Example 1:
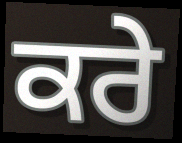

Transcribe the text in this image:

ਕਰੇ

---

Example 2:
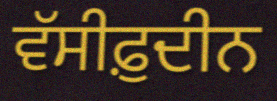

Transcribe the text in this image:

ਵੱਸੀਫ਼ੁਦੀਨ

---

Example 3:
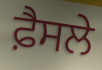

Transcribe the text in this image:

ਫ਼ੈਸਲੇ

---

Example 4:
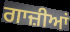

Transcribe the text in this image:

ਗਾਜ਼ੀਆਂ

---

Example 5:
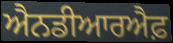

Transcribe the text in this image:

ਐਨਡੀਆਰਐਫ਼